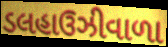
ડલહાઉઝીવાળા